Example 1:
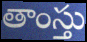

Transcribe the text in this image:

తాంస్తు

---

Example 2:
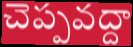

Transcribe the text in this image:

చెప్పవద్దా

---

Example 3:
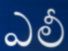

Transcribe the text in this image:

ఎలీ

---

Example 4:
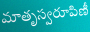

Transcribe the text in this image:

మాతృస్వరూపిణీ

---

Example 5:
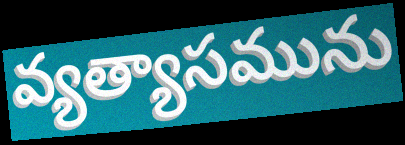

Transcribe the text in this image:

వ్యత్యాసమును